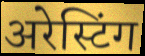
अरेस्टिंग